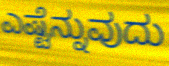
ಎಷ್ಟೆನ್ನುವುದು